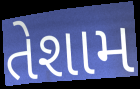
તેશામ